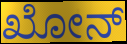
ಖೋನ್